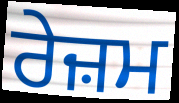
ਰੇਜ਼ਮ